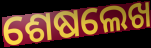
ଶେଷଲେଖ